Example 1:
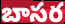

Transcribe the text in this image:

బాసర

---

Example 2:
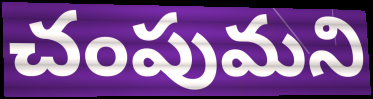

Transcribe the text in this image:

చంపుమని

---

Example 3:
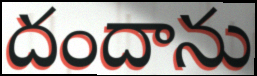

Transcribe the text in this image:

దందాను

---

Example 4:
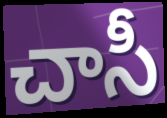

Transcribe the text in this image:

చాసీ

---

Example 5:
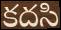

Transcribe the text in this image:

కదసి